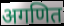
अगणित